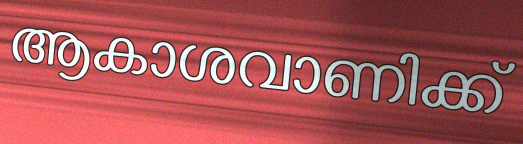
ആകാശവാണിക്ക്